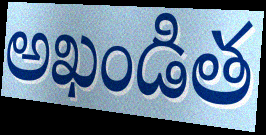
అఖండిత